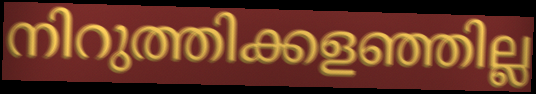
നിറുത്തിക്കളഞ്ഞില്ല